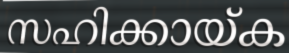
സഹിക്കായ്ക